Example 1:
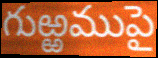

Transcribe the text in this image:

గుఱ్ఱముపై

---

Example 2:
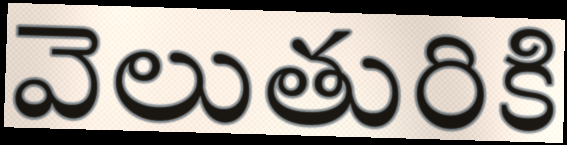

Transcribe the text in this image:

వెలుతురికి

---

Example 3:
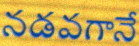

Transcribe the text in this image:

నడవగానే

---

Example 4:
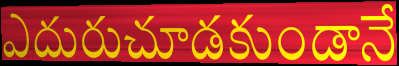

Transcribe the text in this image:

ఎదురుచూడకుండానే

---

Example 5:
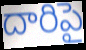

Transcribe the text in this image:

దారిపై